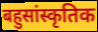
बहुसांस्कृतिक